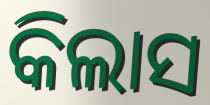
କିଲାସ